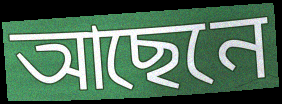
আছেনে